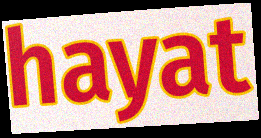
hayat